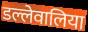
डल्लेवालिया